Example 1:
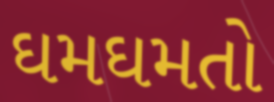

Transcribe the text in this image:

ઘમઘમતો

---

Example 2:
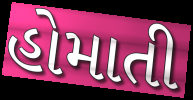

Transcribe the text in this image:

હોમાતી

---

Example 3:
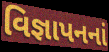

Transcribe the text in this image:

વિજ્ઞાપનનાં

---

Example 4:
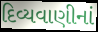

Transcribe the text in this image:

દિવ્યવાણીનાં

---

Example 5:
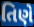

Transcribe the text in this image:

તિણે